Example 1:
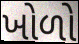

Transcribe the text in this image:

ખોળો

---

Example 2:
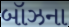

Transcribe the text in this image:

બૉઝના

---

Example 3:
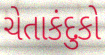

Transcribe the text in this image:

ચેતાકંદુકો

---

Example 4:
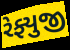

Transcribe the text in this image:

રેફ્યુજી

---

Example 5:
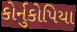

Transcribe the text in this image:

કોર્નુકોપિયા